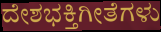
ದೇಶಭಕ್ತಿಗೀತೆಗಳು